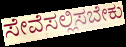
ಸೇವೆಸಲ್ಲಿಸಬೇಕು